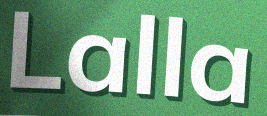
Lalla